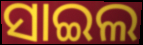
ସାଇଲ